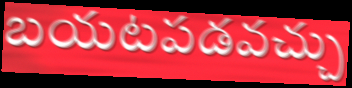
బయటపడవచ్చు